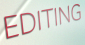
EDITING